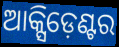
ଆକ୍ସିଡ଼େଣ୍ଟର